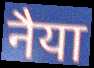
नैया